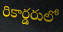
రికార్డరులో